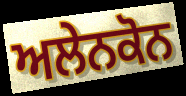
ਅਲੇਨਕੋਨ